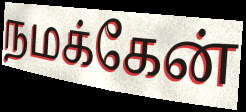
நமக்கேன்